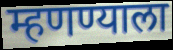
म्हणण्याला